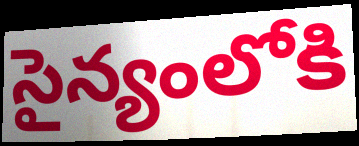
సైన్యంలోకి